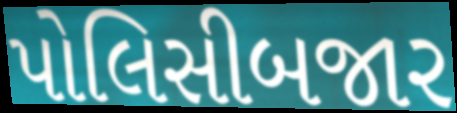
પોલિસીબજાર